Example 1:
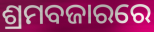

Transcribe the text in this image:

ଶ୍ରମବଜାରରେ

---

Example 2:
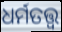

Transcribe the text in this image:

ଧର୍ମତତ୍ତ୍ଵ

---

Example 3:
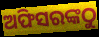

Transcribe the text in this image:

ଅଫିସରଙ୍କଠୁ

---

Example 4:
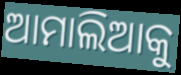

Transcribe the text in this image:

ଆମାଲିଆକୁ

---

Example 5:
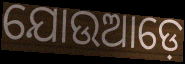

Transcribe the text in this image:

ଯୋଉଆଡ଼େ